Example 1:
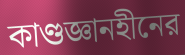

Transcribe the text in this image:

কাণ্ডজ্ঞানহীনের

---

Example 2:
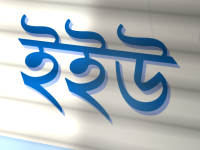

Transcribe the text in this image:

ইইউ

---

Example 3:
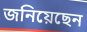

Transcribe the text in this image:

জনিয়েছেন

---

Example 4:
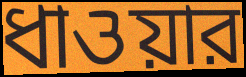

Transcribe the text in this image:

ধাওয়ার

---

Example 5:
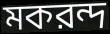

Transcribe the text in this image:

মকরন্দ